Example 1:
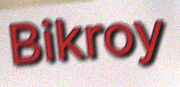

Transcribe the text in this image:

Bikroy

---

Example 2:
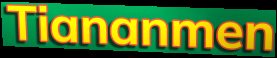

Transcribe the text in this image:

Tiananmen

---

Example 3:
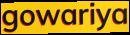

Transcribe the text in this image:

gowariya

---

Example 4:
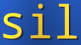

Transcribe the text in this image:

sil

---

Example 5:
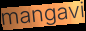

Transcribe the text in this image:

mangavi